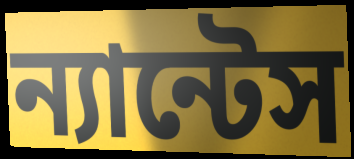
ন্যান্টেস